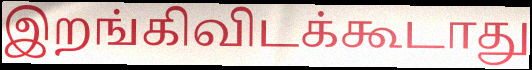
இறங்கிவிடக்கூடாது